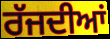
ਰੱਜਦੀਆਂ